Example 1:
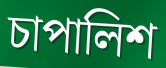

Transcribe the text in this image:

চাপালিশ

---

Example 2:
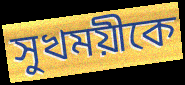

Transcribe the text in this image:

সুখময়ীকে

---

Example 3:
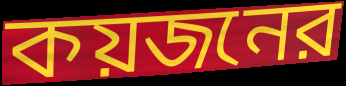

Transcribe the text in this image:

কয়জনের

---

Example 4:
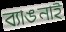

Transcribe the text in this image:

ব্যাঙনাই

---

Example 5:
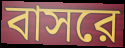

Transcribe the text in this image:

বাসরে